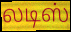
லடிஸ்